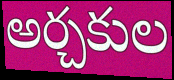
అర్చకుల